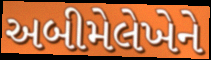
અબીમેલેખેને